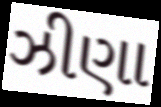
ઝીણા